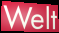
Welt